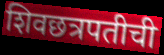
शिवछत्रपतीची